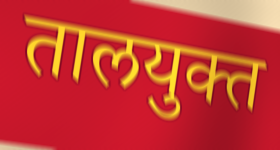
तालयुक्त